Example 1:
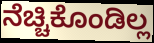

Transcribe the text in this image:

ನೆಚ್ಚಿಕೊಂಡಿಲ್ಲ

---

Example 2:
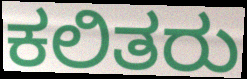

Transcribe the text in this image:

ಕಲಿತರು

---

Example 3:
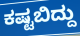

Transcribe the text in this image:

ಕಷ್ಟಬಿದ್ದು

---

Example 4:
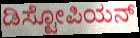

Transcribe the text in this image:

ಡಿಸ್ಟೋಪಿಯನ್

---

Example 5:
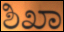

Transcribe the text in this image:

ಶಿಖಾ